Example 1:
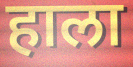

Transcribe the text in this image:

हाला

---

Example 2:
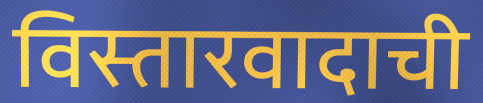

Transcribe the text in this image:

विस्तारवादाची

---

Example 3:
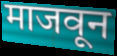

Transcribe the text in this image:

माजवून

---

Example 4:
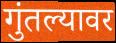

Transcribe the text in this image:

गुंतल्यावर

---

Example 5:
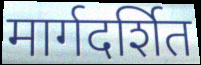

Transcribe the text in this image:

मार्गदर्शित